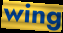
wing